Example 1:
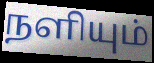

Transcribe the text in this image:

நளியும்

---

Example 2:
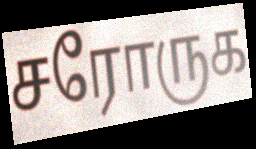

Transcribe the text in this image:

சரோருக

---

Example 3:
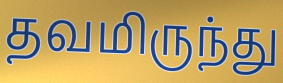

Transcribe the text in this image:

தவமிருந்து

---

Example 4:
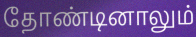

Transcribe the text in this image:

தோண்டினாலும்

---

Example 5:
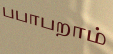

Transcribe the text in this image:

பபாபறாம்